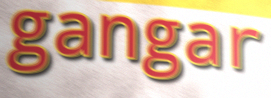
gangar